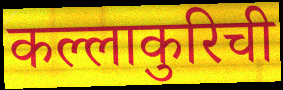
कल्लाकुरिची